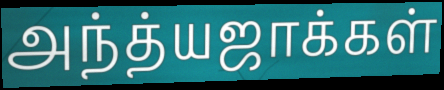
அந்த்யஜாக்கள்